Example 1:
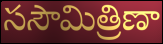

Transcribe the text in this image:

ససౌమిత్రిణా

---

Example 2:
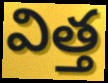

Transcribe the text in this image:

విత్త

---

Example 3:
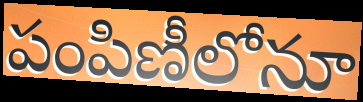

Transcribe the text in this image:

పంపిణీలోనూ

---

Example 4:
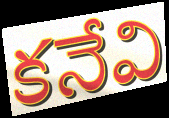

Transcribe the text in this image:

కనేవి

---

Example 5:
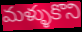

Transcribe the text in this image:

మళ్ళుకొని